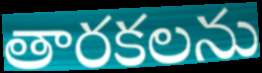
తారకలను